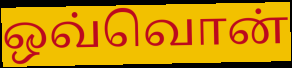
ஒவ்வொன்